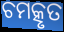
ଚମତ୍କୃତ